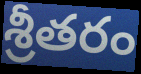
శ్రీతరం